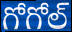
గోగోల్